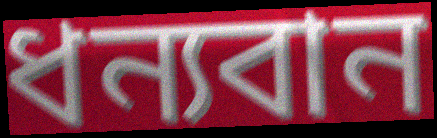
ধন্যবান